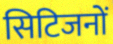
सिटिजनों